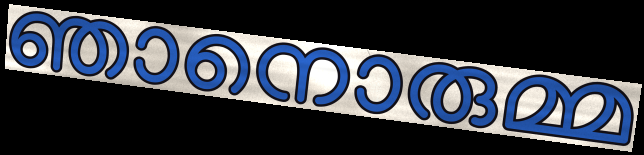
ഞാനൊരുമ്മ